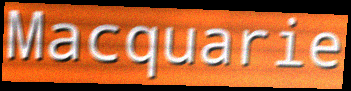
Macquarie